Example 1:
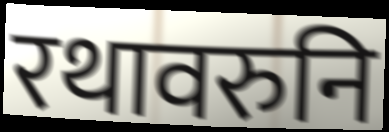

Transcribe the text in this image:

रथावरुनि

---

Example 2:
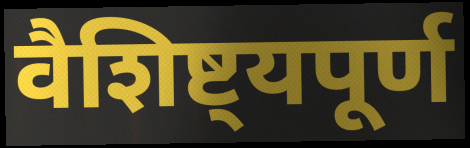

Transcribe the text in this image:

वैशिष्ट्यपूर्ण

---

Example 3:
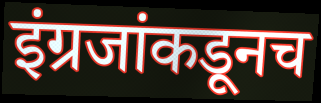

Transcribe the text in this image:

इंग्रजांकडूनच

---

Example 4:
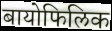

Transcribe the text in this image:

बायोफिलिक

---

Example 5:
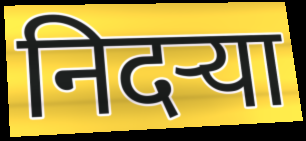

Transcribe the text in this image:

निदऱ्या